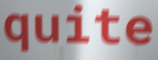
quite